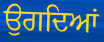
ਉਗਦਿਆਂ